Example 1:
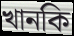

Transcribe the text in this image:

খানকি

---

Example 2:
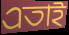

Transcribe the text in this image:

এতাই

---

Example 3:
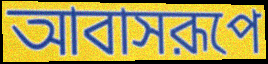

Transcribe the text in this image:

আবাসরূপে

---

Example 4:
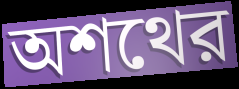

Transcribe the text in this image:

অশথের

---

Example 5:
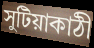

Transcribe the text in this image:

সুটিয়াকাঠী